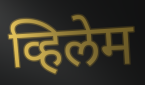
व्हिलेम